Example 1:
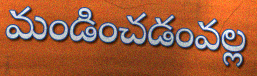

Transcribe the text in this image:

మండించడంవల్ల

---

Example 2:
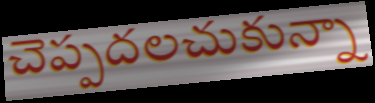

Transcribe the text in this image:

చెప్పదలచుకున్నా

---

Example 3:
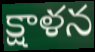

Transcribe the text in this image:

క్షాళన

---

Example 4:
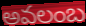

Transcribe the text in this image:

అవలంబ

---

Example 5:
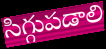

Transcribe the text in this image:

సిగ్గుపడాలి